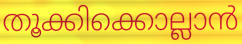
തൂക്കിക്കൊല്ലാൻ